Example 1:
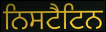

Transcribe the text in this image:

ਨਿਸਟੈਟਿਨ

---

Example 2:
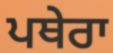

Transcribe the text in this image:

ਪਥੇਰਾ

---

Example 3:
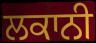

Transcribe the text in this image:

ਲਕਾਨੀ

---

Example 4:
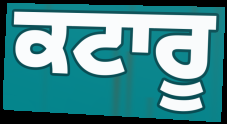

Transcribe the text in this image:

ਕਟਾਰੂ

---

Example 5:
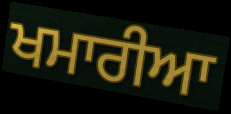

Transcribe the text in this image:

ਖਮਾਰੀਆ